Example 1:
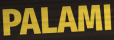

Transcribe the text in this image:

PALAMI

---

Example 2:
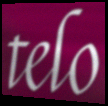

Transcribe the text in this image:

telo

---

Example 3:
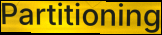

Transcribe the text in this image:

Partitioning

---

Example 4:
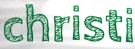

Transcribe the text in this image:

christi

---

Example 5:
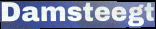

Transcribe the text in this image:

Damsteegt